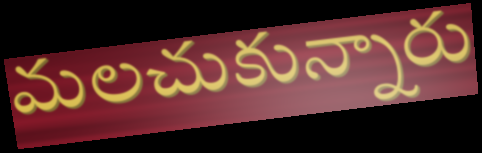
మలచుకున్నారు